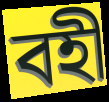
বহী